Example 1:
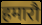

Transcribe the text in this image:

हमारौ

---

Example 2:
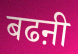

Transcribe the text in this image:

बढऩी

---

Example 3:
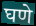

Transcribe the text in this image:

घणे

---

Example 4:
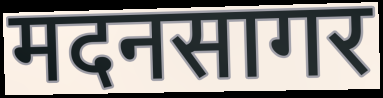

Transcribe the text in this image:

मदनसागर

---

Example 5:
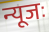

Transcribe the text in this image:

न्यूजः